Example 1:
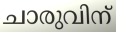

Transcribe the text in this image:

ചാരുവിന്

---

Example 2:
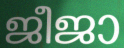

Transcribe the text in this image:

ജീജാ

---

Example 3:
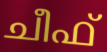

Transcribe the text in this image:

ചീഫ്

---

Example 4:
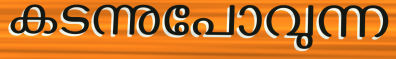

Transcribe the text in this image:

കടന്നുപോവുന്ന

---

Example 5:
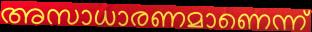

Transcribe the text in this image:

അസാധാരണമാണെന്ന്